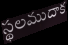
స్థలముదాక